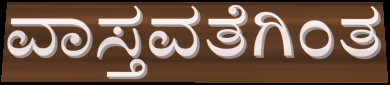
ವಾಸ್ತವತೆಗಿಂತ